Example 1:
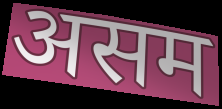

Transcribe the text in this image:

असम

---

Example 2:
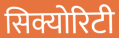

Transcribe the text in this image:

सिक्योरिटी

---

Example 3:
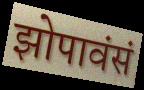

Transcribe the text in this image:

झोपावंसं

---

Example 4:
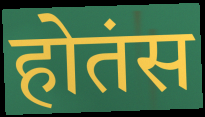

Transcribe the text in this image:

होतंस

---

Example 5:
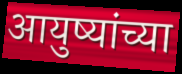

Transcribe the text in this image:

आयुष्यांच्या